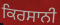
ਕਿਰਸਾਨੀ